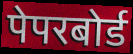
पेपरबोर्ड